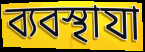
ব্যবস্থাযা